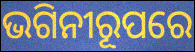
ଭଗିନୀରୂପରେ